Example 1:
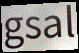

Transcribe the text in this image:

gsal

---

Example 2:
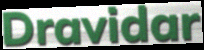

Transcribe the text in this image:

Dravidar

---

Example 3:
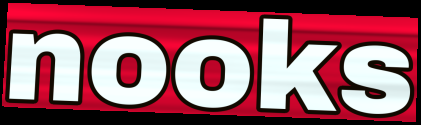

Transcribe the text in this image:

nooks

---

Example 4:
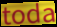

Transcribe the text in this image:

toda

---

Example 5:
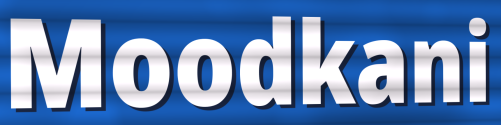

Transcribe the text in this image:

Moodkani